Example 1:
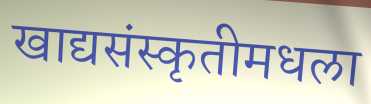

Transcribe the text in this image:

खाद्यसंस्कृतीमधला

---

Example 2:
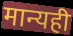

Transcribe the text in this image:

मान्यही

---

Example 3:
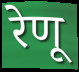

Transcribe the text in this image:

रेणू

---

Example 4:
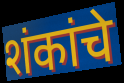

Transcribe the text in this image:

शंकांचे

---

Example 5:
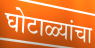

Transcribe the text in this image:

घोटाळ्यांचा